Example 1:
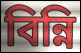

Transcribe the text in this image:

বিন্নি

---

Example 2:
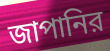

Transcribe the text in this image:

জাপানির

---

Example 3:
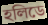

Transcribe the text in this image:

হলিডে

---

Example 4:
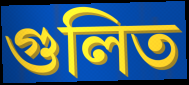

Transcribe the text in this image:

গুলিত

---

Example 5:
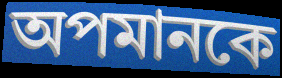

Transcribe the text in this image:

অপমানকে